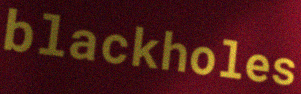
blackholes